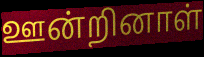
ஊன்றினாள்